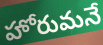
హోరుమనే